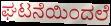
ಘಟನೆಯಿಂದಲೆ